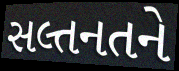
સલ્તનતને